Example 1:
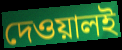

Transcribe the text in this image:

দেওয়ালই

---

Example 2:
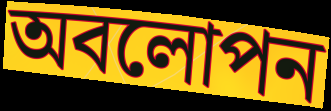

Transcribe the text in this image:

অবলোপন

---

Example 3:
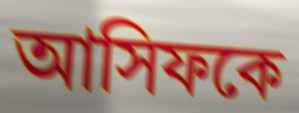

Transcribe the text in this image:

আসিফকে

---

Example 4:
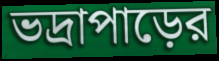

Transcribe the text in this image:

ভদ্রাপাড়ের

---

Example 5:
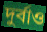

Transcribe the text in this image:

দুর্বাও